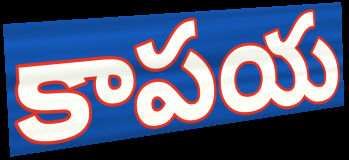
కాపయ